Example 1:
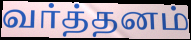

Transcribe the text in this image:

வர்த்தனம்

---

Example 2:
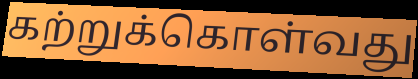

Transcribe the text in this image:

கற்றுக்கொள்வது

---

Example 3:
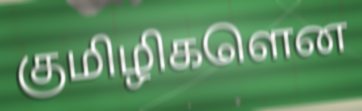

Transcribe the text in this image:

குமிழிகளென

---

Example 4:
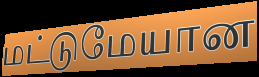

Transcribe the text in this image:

மட்டுமேயான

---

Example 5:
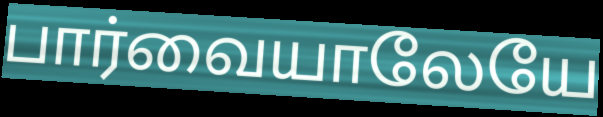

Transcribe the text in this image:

பார்வையாலேயே